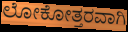
ಲೋಕೋತ್ತರವಾಗಿ